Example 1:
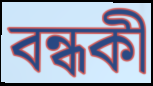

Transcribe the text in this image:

বন্ধকী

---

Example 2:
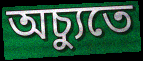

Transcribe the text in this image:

অচ্যুতে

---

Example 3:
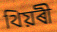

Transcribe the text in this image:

থিয়ৰী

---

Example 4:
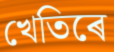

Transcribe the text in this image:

খেতিৰে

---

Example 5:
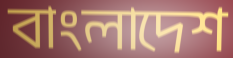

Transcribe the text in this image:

বাংলাদেশ